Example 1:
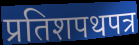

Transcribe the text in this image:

प्रतिशपथपत्र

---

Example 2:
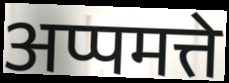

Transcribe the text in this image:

अप्पमत्ते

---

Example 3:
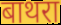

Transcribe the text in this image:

बाथरा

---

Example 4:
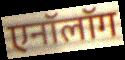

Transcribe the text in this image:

एनॉलॉग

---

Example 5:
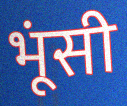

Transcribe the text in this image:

भूंसी